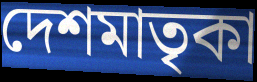
দেশমাতৃকা